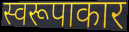
स्वरूपाकार